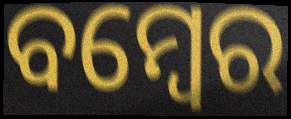
ବମ୍ବେର